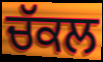
ਚੱਕਲ